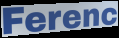
Ferenc